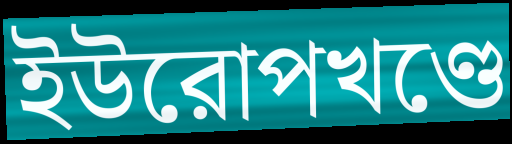
ইউরোপখণ্ডে